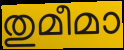
തുമീമാ